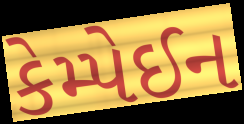
કેમ્પેઈન